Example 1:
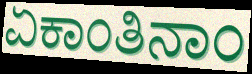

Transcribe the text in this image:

ಏಕಾಂತಿನಾಂ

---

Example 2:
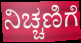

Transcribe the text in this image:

ನಿಚ್ಚಣಿಗೆ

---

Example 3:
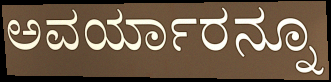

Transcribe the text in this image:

ಅವರ್ಯಾರನ್ನೂ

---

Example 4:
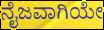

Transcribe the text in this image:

ನೈಜವಾಗಿಯೇ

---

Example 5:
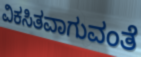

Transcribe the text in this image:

ವಿಕಸಿತವಾಗುವಂತೆ